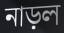
নাড়ল